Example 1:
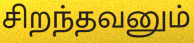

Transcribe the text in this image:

சிறந்தவனும்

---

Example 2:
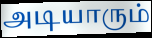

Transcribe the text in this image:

அடியாரும்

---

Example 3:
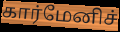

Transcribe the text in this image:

கார்மேனிச்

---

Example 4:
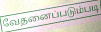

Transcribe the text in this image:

வேதனைப்படும்படி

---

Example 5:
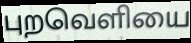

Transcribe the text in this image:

புறவெளியை